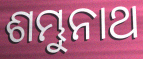
ଶମ୍ଭୁନାଥ